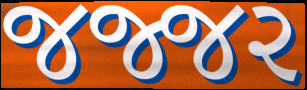
જજ્જર